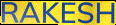
RAKESH